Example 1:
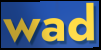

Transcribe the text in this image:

wad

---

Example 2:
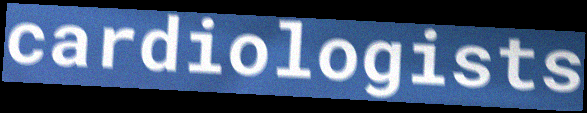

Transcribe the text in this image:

cardiologists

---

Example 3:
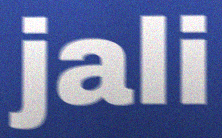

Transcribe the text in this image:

jali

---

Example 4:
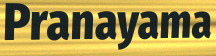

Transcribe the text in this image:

Pranayama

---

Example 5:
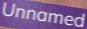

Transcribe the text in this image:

Unnamed